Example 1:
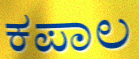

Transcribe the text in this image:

ಕಪಾಲ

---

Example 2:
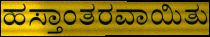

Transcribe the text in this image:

ಹಸ್ತಾಂತರವಾಯಿತು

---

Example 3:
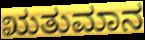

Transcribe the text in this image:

ಋತುಮಾನ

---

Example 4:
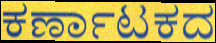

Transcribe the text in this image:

ಕರ್ಣಾಟಕದ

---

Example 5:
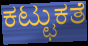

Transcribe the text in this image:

ಕಟ್ಟುಕತೆ